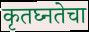
कृतघ्नतेचा